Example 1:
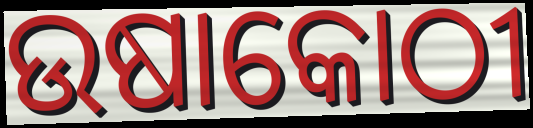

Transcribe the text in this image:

ଉଷାକୋଠୀ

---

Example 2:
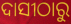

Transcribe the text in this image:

ଦାସୀଠାରୁ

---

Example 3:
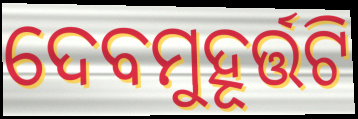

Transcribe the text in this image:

ଦେବମୁହୂର୍ତ୍ତଟି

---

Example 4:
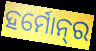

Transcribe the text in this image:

ହର୍ମୋନ୍‌ର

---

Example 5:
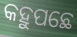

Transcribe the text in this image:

କହୁପଛେ